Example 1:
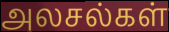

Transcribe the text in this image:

அலசல்கள்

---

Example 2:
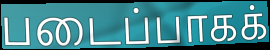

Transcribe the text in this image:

படைப்பாகக்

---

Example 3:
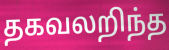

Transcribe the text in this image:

தகவலறிந்த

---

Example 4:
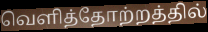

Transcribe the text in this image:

வெளித்தோற்றத்தில்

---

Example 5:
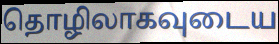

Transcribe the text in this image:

தொழிலாகவுடைய